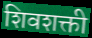
शिवशक्ती